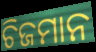
ଚିଜମାନ